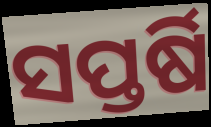
ସପ୍ତର୍ଷି